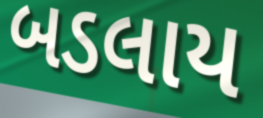
બડલાય